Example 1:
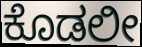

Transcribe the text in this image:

ಕೊಡಲೀ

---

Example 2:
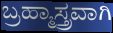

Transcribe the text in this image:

ಬ್ರಹ್ಮಾಸ್ತ್ರವಾಗಿ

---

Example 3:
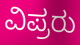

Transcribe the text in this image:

ವಿಪ್ರರು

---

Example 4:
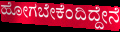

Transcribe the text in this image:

ಹೋಗಬೇಕೆಂದಿದ್ದೇನೆ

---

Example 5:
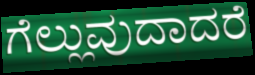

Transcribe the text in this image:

ಗೆಲ್ಲುವುದಾದರೆ